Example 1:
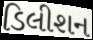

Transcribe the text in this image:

ડિલીશન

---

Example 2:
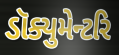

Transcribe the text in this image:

ડૉક્યુમેન્ટરિ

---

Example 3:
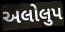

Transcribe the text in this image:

અલોલુપ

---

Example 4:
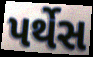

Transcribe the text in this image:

પર્થેસ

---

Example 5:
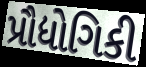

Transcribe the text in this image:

પ્રૌદ્યોગિકી